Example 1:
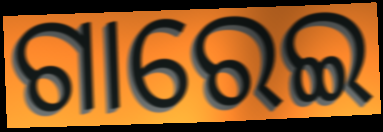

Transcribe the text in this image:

ଗାରେଇ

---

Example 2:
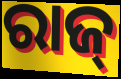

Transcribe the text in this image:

ରାଜ୍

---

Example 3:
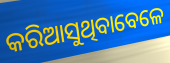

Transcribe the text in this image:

କରିଆସୁଥିବାବେଳେ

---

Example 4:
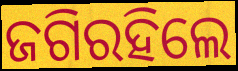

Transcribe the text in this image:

ଜଗିରହିଲେ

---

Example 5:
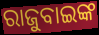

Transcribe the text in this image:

ରାଜୁବାଇଙ୍କ